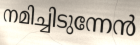
നമിച്ചിടുന്നേൻ